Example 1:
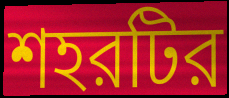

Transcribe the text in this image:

শহরটির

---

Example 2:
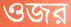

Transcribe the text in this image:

ওজর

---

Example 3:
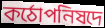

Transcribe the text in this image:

কঠোপনিষদে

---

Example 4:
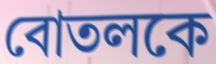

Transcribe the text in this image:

বোতলকে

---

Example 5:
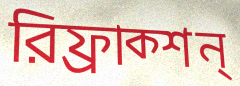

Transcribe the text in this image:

রিফ্রাক্শন্